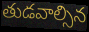
తుడవాల్సిన